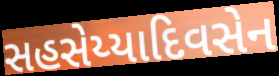
સહસેય્યાદિવસેન